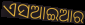
ଏସଆଇଆର